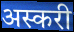
अस्करी